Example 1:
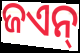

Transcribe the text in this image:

ଜଏନ୍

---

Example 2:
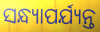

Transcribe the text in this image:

ସନ୍ଧ୍ୟାପର୍ଯ୍ୟନ୍ତ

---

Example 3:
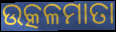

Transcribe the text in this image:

ଉତ୍କଳମାତା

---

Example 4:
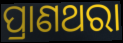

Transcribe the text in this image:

ପ୍ରାଣଥରା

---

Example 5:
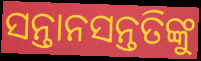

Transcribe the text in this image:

ସନ୍ତାନସନ୍ତତିଙ୍କୁ